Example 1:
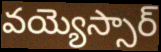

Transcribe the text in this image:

వయ్యెస్సార్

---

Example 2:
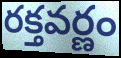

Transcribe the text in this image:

రక్తవర్ణం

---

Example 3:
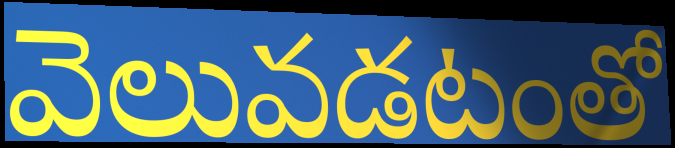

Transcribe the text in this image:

వెలువడటంతో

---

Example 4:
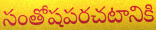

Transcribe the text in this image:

సంతోషపరచటానికి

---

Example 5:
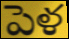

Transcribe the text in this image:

పెళ